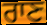
ਰਾਣ